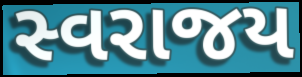
સ્વરાજય